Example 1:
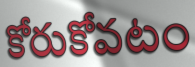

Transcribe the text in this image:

కోరుకోవటం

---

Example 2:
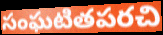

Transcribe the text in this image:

సంఘటితపరచి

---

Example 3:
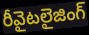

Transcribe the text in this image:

రీవైటలైజింగ్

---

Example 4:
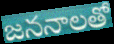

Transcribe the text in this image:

జననాలతో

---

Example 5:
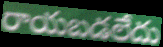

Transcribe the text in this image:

రాయబడలేదు